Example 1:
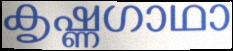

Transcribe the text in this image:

കൃഷ്ണഗാഥാ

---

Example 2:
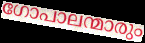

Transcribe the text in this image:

ഗോപാലന്മാരും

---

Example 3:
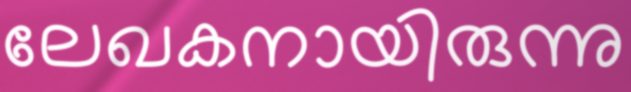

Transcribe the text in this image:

ലേഖകനായിരുന്നു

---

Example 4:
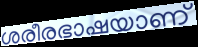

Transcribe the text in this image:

ശരീരഭാഷയാണ്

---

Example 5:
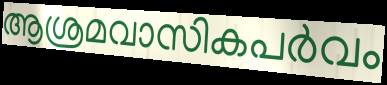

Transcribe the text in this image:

ആശ്രമവാസികപർവം